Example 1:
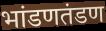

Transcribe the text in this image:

भांडणतंडण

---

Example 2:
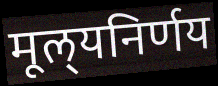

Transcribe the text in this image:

मूल्यनिर्णय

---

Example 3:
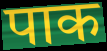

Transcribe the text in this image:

पाक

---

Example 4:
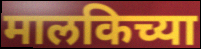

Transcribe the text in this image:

मालकिच्या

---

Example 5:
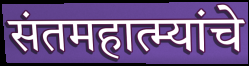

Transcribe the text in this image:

संतमहात्म्यांचे